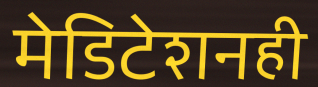
मेडिटेशनही